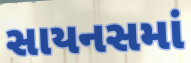
સાયનસમાં